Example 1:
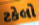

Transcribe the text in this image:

ટકેલો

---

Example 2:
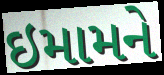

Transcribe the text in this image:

ઇમામને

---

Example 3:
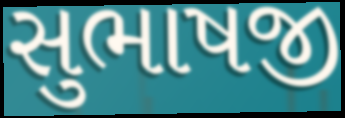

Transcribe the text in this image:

સુભાષજી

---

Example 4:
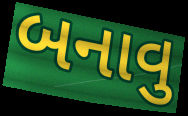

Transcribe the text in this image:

બનાવુ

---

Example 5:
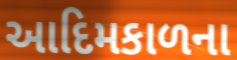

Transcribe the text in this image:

આદિમકાળના